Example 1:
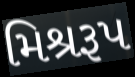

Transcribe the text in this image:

મિશ્રરૂપ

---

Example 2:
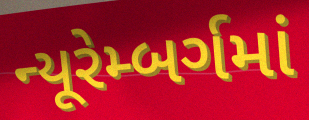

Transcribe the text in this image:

ન્યૂરેમ્બર્ગમાં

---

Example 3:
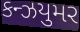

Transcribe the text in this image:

કન્ઝયુમર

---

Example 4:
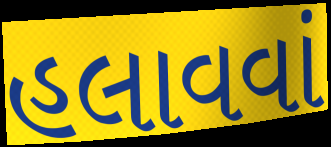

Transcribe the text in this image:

હલાવવાં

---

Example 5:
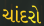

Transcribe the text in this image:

ચાંદરો